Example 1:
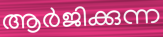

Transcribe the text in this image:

ആർജിക്കുന്ന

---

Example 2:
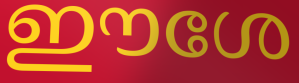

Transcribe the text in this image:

ഈശേ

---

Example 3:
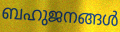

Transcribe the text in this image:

ബഹുജനങ്ങൾ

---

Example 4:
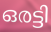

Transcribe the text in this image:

ഒരട്ടി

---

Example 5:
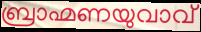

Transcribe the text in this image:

ബ്രാഹ്മണയുവാവ്